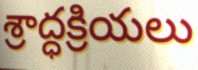
శ్రాద్ధక్రియలు